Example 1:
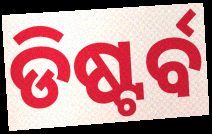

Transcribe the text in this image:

ଡିଷ୍ଟର୍ବ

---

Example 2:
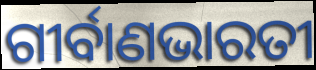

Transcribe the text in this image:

ଗୀର୍ବାଣଭାରତୀ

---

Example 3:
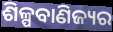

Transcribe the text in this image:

ଶିଳ୍ପବାଣିଜ୍ୟର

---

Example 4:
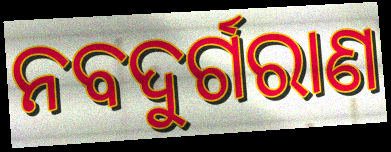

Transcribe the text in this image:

ନବଦୁର୍ଗରାଣ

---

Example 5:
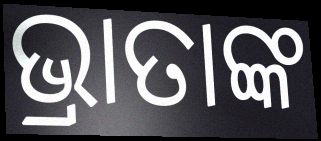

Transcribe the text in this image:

ଭ୍ରାତାଙ୍କ